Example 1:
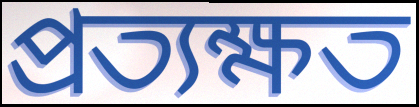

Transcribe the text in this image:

প্রত্যক্ষত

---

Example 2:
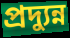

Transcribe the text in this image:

প্রদ্যুন্ন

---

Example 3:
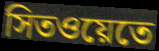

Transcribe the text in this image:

সিতওয়েতে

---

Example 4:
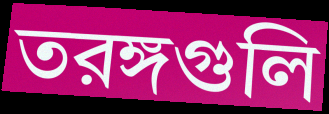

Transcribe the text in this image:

তরঙ্গগুলি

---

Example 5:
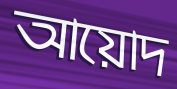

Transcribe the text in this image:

আয়োদ